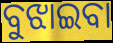
ବୁଝାଇବା